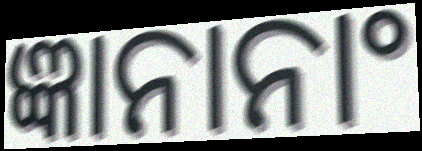
ଜ୍ଞାନାନାଂ